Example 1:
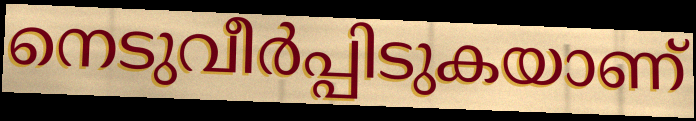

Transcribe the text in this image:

നെടുവീർപ്പിടുകയാണ്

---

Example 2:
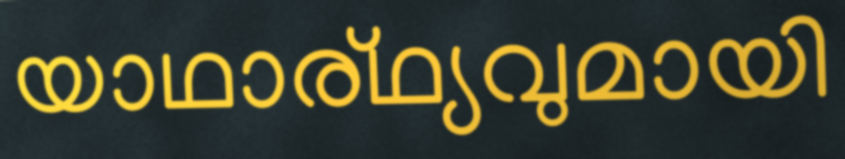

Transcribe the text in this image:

യാഥാര്ഥ്യവുമായി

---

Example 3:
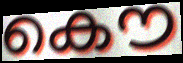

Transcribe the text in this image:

കൌ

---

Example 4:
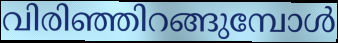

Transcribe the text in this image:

വിരിഞ്ഞിറങ്ങുമ്പോൾ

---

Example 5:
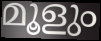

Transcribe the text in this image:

മൂളും